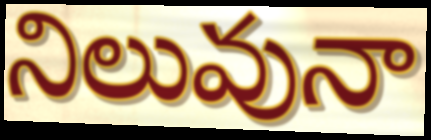
నిలువునా